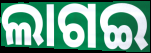
ଲାଗଇ